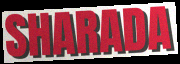
SHARADA